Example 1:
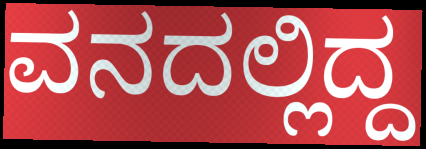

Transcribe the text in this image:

ವನದಲ್ಲಿದ್ದ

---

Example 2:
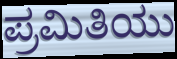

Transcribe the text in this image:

ಪ್ರಮಿತಿಯು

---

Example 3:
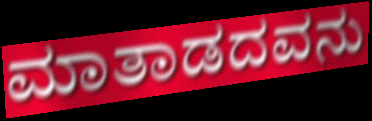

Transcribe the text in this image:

ಮಾತಾಡದವನು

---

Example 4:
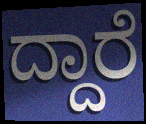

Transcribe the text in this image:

ದ್ದಾರೆ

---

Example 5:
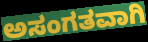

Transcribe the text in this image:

ಅಸಂಗತವಾಗಿ